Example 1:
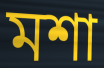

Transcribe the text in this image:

মশা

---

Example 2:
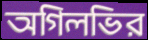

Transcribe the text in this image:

অগিলভির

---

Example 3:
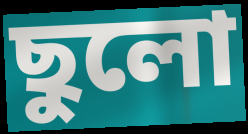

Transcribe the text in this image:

ছুলো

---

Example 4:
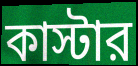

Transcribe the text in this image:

কাস্টার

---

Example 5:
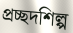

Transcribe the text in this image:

প্রচ্ছদশিল্প